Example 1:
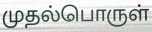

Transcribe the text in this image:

முதல்பொருள்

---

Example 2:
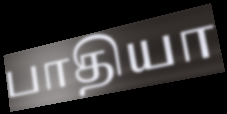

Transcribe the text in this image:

பாதியா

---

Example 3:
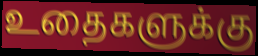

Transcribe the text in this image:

உதைகளுக்கு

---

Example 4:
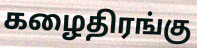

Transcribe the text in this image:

கழைதிரங்கு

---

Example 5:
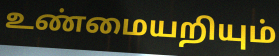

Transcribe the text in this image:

உண்மையறியும்